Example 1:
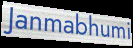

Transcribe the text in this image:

Janmabhumi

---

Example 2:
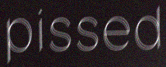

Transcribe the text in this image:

pissed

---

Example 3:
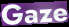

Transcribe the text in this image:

Gaze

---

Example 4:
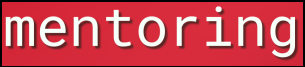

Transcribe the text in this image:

mentoring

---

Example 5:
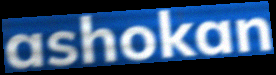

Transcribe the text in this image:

ashokan